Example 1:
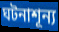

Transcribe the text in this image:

ঘটনাশূন্য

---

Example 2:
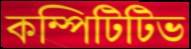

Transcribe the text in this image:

কম্পিটিটিভ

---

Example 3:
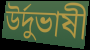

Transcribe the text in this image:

উর্দুভাষী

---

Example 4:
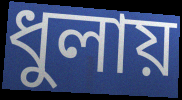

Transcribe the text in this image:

ধুলায়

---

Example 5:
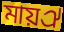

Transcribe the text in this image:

মায়ঐ